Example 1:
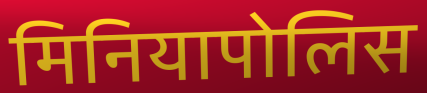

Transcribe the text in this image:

मिनियापोलिस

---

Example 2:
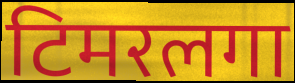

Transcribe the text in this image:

टिमरलगा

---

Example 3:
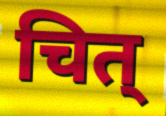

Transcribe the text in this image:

चित्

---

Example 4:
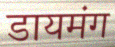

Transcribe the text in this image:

डायमंग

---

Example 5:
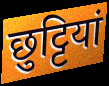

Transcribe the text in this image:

छुट्टियां